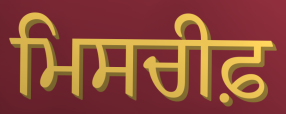
ਮਿਸਚੀਫ਼